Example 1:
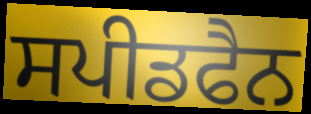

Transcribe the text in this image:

ਸਪੀਡਫੈਨ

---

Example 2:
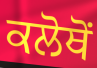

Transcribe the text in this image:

ਕਲੋਥੋਂ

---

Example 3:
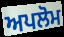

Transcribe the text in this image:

ਅਪਲੋਮ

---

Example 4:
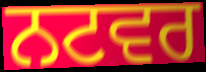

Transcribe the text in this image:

ਨਟਵਰ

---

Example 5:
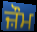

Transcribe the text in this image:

ਜ਼ੌਮ